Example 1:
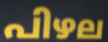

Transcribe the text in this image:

പിഴല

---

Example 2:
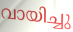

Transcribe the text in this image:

വായിച്ചു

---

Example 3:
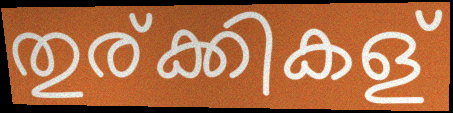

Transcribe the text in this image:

തുര്ക്കികള്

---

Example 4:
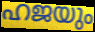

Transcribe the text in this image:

ഹജയും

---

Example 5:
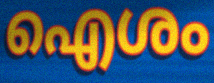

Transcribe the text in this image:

ഐശം